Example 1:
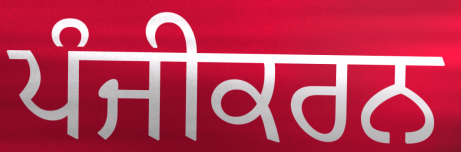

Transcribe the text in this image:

ਪੰਜੀਕਰਨ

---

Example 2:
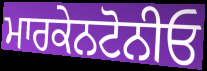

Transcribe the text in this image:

ਮਾਰਕੇਨਟੋਨੀਓ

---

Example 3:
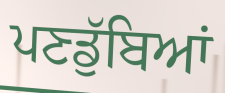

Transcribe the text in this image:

ਪਣਡੁੱਬਿਆਂ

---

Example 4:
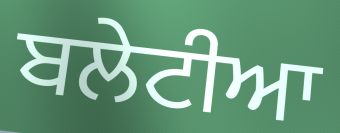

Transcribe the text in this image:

ਬਲੇਟੀਆ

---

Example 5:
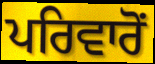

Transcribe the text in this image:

ਪਰਿਵਾਰੋਂ